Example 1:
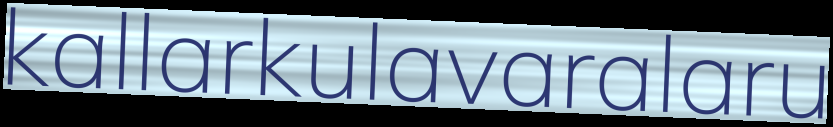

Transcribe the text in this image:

kallarkulavaralaru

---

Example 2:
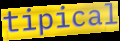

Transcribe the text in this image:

tipical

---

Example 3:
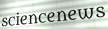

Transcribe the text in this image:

sciencenews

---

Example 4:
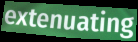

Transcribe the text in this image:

extenuating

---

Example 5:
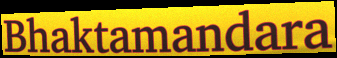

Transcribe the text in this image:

Bhaktamandara